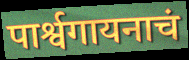
पार्श्वगायनाचं